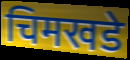
चिमखडे